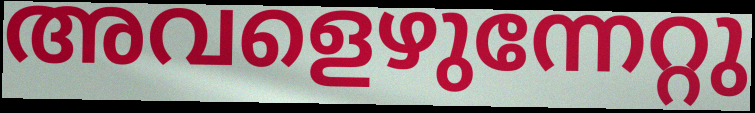
അവളെഴുന്നേറ്റു